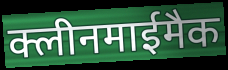
क्लीनमाईमैक